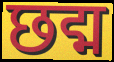
छद्म